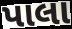
પાલા